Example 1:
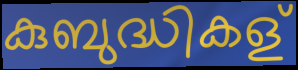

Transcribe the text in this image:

കുബുദ്ധികള്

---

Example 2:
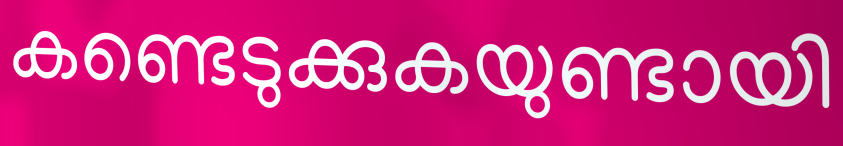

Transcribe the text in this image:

കണ്ടെടുക്കുകയുണ്ടായി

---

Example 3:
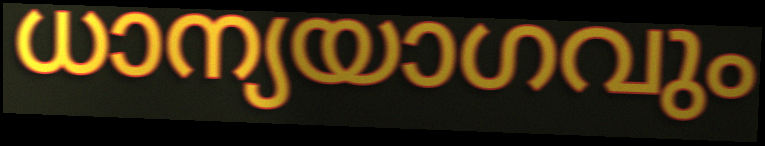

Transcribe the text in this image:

ധാന്യയാഗവും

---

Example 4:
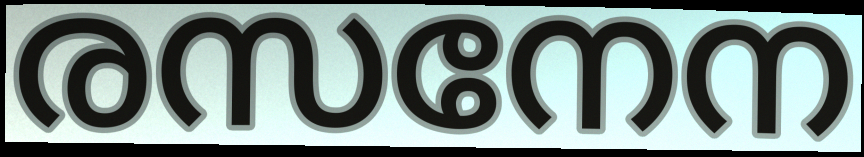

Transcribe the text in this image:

രസനേന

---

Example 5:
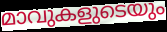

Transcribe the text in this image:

മാവുകളുടെയും